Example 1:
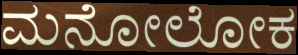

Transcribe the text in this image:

ಮನೋಲೋಕ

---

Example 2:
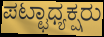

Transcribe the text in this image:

ಪಟ್ಟಾಧ್ಯಕ್ಷರು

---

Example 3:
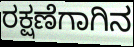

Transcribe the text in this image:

ರಕ್ಷಣೆಗಾಗಿನ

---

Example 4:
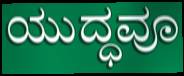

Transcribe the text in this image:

ಯುದ್ಧವೂ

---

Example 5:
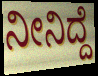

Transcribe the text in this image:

ನೀನಿದ್ದೆ